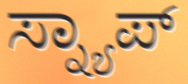
ಸ್ನ್ಯಾಪ್